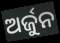
ଅର୍ଜୁନ